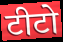
टीटो